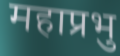
महाप्रभु